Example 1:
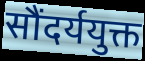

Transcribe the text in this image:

सौंदर्ययुक्त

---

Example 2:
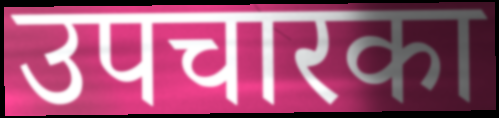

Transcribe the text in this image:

उपचारका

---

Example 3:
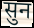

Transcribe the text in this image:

सुन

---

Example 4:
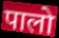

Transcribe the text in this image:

पालो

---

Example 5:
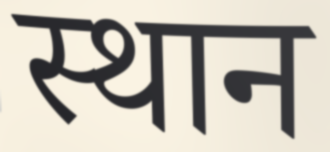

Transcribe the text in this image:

स्थान